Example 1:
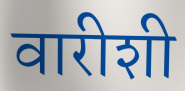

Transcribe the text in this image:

वारीशी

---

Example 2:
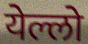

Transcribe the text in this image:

येल्लो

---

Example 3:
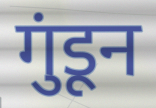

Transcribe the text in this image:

गुंडून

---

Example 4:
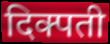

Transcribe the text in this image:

दिक्पती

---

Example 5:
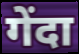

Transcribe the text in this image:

गेंदा